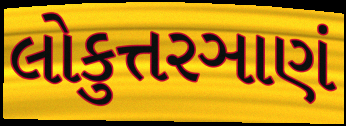
લોકુત્તરઞાણં